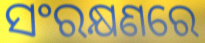
ସଂରକ୍ଷଣରେ